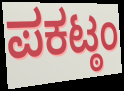
ಪಕಟ್ಠಂ